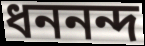
ধননন্দ